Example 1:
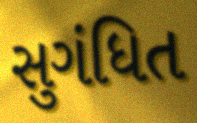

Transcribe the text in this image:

સુગંધિત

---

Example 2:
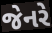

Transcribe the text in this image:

જેનરે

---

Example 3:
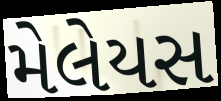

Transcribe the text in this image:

મેલેયસ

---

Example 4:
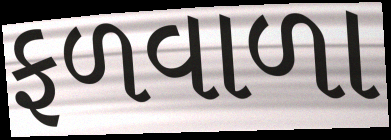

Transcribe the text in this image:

ફળવાળા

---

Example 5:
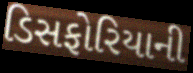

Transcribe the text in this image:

ડિસફોરિયાની